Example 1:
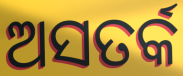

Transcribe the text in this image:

ଅସତର୍କ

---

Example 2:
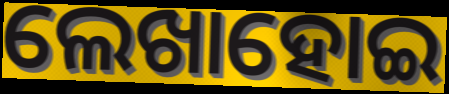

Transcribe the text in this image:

ଲେଖାହୋଇ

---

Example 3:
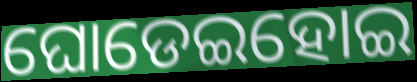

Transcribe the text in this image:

ଘୋଡେଇହୋଇ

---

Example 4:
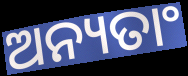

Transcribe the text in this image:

ଅନ୍ୟତାଂ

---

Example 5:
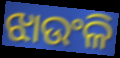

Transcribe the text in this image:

ଝାଉଂଳି